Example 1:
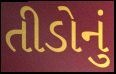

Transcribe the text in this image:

તીડોનું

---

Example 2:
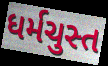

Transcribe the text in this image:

ધર્મચુસ્ત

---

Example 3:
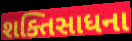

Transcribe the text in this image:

શક્તિસાધના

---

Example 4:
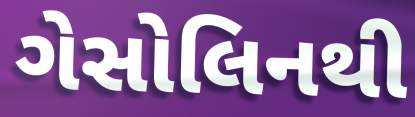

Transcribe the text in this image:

ગેસોલિનથી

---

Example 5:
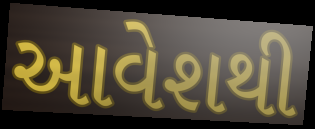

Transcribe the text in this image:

આવેશથી